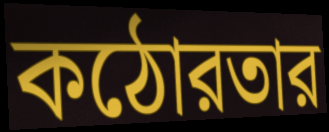
কঠোরতার